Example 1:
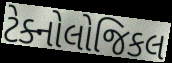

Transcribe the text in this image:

ટેક્નોલોજિકલ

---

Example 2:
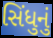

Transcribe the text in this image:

સિંધુનું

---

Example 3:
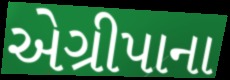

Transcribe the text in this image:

એગ્રીપાના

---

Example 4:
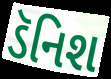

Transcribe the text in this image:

ડૅનિશ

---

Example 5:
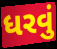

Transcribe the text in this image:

ધરવું